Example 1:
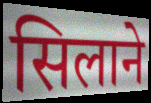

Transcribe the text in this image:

सिलाने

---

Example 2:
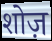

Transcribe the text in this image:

शोज़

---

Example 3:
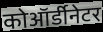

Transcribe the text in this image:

कोऑर्डीनेटर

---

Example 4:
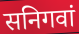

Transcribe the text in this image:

सनिगवां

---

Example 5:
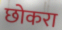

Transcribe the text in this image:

छोकरा